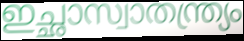
ഇച്ഛാസ്വാതന്ത്ര്യം